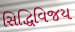
સિદ્ધિવિજય